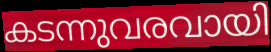
കടന്നുവരവായി